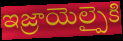
ఇజ్రాయెల్పైకి